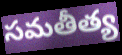
సమతీత్య